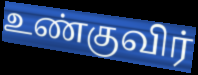
உண்குவிர்